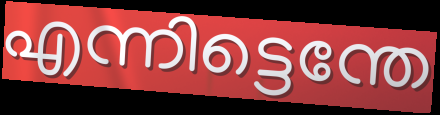
എന്നിട്ടെന്തേ